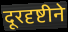
दूरदृष्टीने